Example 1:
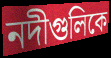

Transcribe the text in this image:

নদীগুলিকে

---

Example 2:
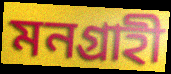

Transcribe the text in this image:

মনগ্রাহী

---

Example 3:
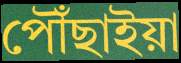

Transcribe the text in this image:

পৌঁছাইয়া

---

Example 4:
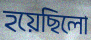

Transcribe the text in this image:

হয়েছিলো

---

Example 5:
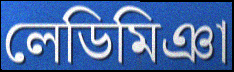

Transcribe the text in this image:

লেডিমিঞা